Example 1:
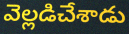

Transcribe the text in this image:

వెల్లడిచేశాడు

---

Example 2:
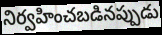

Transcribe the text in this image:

నిర్వహించబడినప్పుడు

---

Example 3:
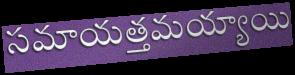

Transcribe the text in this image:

సమాయత్తమయ్యాయి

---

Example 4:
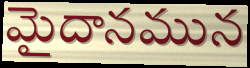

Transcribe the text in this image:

మైదానమున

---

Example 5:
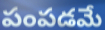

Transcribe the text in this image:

పంపడమే